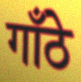
गाँठे